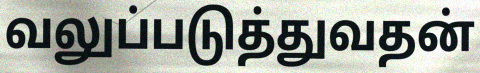
வலுப்படுத்துவதன்